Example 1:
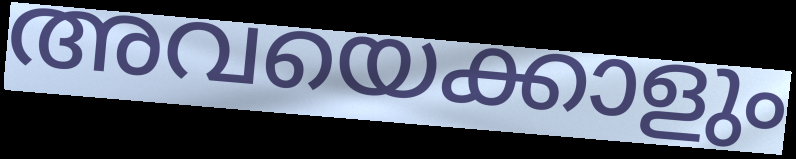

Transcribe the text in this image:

അവയെക്കാളും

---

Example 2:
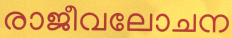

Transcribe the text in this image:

രാജീവലോചന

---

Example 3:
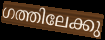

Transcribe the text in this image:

ഗത്തിലേക്കു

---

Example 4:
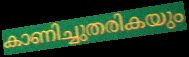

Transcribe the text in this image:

കാണിച്ചുതരികയും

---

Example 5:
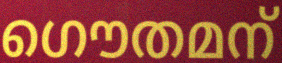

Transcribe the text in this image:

ഗൌതമന്